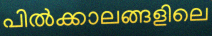
പിൽക്കാലങ്ങളിലെ